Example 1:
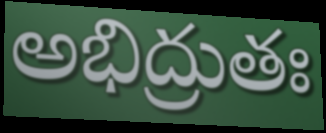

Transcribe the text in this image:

అభిద్రుతః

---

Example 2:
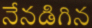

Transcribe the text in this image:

నేనడిగిన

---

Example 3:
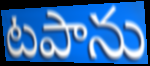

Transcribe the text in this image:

టపాను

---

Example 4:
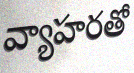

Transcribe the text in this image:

వ్యాహరతో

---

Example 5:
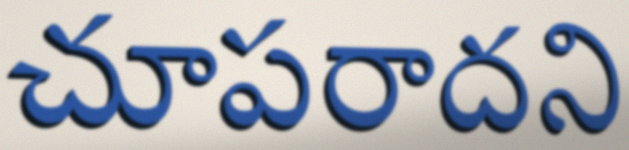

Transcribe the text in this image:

చూపరాదని